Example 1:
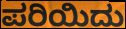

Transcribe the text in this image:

ಪರಿಯಿದು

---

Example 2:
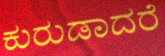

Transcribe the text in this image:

ಕುರುಡಾದರೆ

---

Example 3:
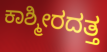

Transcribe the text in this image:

ಕಾಶ್ಮೀರದತ್ತ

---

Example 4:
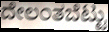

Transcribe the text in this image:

ದೇಲಂತಬೆಟ್ಟು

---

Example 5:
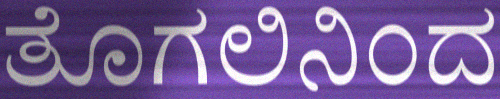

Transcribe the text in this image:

ತೊಗಲಿನಿಂದ